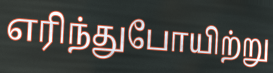
எரிந்துபோயிற்று